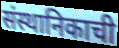
संस्थानिकाची